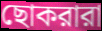
ছোকরারা